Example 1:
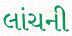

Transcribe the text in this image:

લાંચની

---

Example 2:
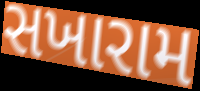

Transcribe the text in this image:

સખારામ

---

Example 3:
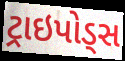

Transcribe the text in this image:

ટ્રાઇપોડ્સ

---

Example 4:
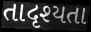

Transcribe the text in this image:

તાદૃશ્યતા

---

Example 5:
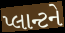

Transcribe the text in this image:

પ્લાન્ટને